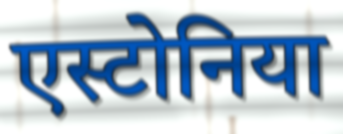
एस्टोनिया